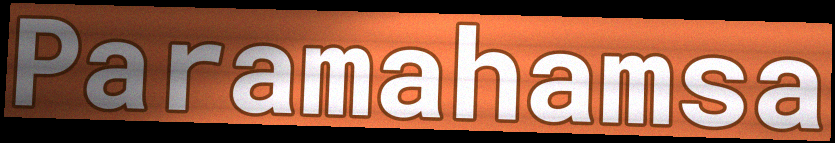
Paramahamsa